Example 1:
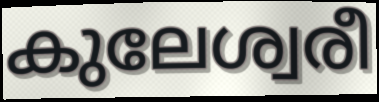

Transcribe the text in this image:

കുലേശ്വരീ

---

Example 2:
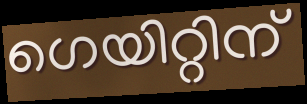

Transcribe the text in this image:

ഗെയിറ്റിന്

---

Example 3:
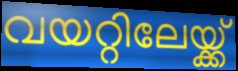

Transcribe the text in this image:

വയറ്റിലേയ്ക്ക്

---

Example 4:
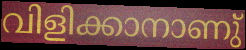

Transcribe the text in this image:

വിളിക്കാനാണു്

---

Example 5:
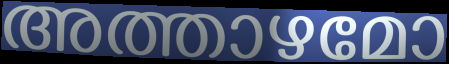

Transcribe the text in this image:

അത്താഴമോ